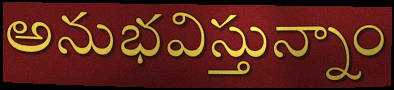
అనుభవిస్తున్నాం